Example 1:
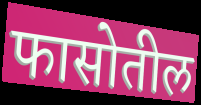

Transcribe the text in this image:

फासोतील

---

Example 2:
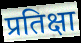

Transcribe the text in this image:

प्रतिक्षा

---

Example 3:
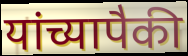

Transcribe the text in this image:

यांच्यापैकी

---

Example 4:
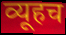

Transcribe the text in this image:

व्यूहच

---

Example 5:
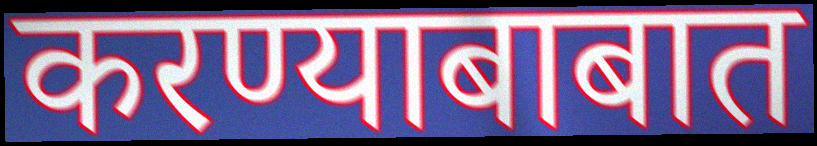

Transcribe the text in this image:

करण्याबाबात